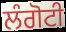
ਲੰਗੋਟੀ